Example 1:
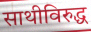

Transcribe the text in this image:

साथीविरुद्ध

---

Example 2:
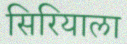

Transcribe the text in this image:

सिरियाला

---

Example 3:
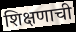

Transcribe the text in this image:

शिक्षणाची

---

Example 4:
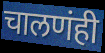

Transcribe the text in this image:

चालणंही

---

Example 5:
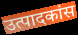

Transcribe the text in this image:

उत्पादकांस